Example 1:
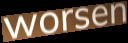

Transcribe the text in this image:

worsen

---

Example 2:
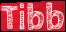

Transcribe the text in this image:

Tibb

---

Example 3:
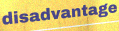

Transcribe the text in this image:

disadvantage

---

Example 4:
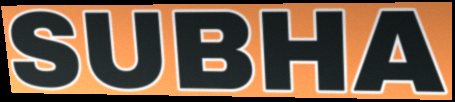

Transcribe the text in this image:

SUBHA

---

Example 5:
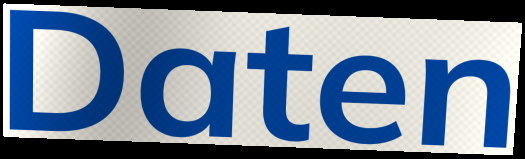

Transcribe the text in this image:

Daten